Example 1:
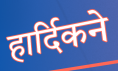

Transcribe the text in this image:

हार्दिकने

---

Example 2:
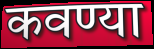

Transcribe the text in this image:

कवण्या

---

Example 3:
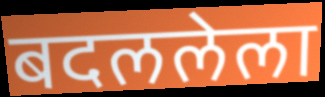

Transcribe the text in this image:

बदललेला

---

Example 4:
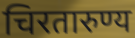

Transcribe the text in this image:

चिरतारुण्य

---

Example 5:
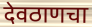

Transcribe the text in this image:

देवठाणचा